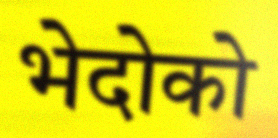
भेदोको